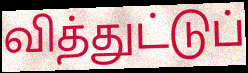
வித்துட்டுப்